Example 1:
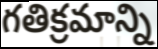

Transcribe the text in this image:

గతిక్రమాన్ని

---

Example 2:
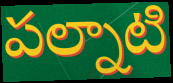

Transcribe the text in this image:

పల్నాటి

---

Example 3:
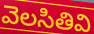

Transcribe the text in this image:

వెలసితివి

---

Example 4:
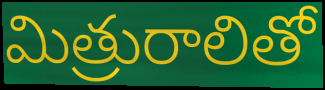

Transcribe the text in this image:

మిత్రురాలితో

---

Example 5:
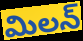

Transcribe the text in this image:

మిలన్